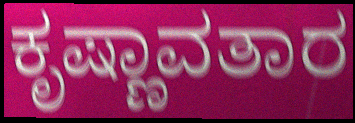
ಕೃಷ್ಣಾವತಾರ